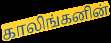
காலிங்கனின்